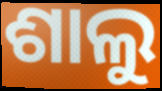
ଶାଲୁ